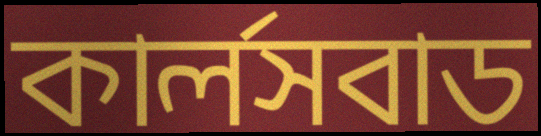
কার্লসবাড